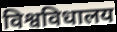
विश्वविधालय